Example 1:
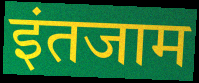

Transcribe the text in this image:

इंतजाम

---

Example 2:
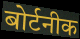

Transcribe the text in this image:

बोर्टनीक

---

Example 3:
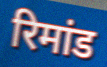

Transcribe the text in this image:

रिमांड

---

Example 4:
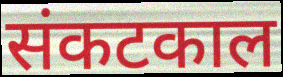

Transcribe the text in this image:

संकटकाल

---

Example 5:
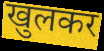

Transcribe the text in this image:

खुलकर